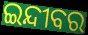
ଇନ୍ଦୀବର